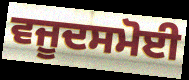
ਵਜੂਦਸਮੋਈ